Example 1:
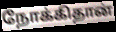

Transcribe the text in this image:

நோக்கிதான்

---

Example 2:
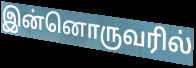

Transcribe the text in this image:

இன்னொருவரில்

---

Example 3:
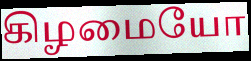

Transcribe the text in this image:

கிழமையோ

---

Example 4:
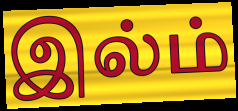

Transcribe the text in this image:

இல்ம்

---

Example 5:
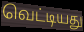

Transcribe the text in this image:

வெட்டியது